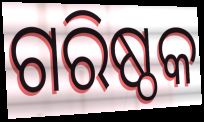
ଗରିଷ୍ଠକ